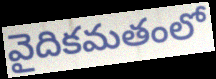
వైదికమతంలో